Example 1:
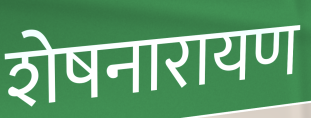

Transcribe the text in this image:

शेषनारायण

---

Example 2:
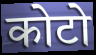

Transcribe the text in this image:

कोटो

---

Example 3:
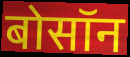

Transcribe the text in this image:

बोसॉन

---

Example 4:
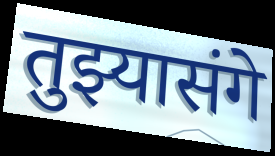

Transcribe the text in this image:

तुझ्यासंगे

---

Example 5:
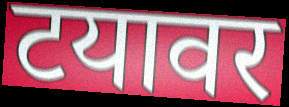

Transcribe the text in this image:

टयावर